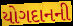
યોગદાનની